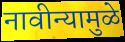
नावीन्यामुळे